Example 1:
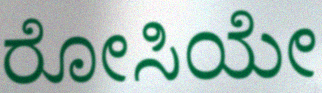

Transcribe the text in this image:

ರೋಸಿಯೇ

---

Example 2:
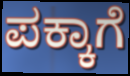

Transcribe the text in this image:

ಪಕ್ಕಾಗೆ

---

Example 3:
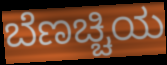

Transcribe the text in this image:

ಬೆಣಚ್ಚಿಯ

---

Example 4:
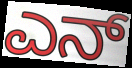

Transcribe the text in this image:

ಎನ್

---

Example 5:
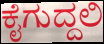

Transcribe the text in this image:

ಕೈಗುದ್ದಲಿ